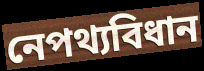
নেপথ্যবিধান